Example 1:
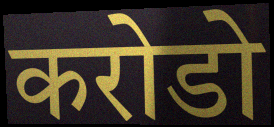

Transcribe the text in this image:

करोडो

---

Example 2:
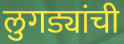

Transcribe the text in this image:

लुगड्यांची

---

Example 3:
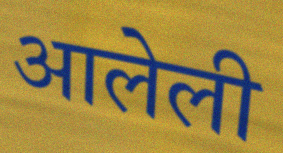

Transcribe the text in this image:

आलेली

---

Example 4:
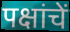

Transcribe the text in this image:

पक्षांचें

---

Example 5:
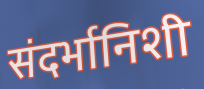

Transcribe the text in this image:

संदर्भानिशी